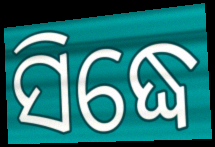
ସିଦ୍ଧେ